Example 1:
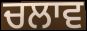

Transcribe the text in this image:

ਚਲਾਵ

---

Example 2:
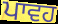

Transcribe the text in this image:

ਪਾਵਹ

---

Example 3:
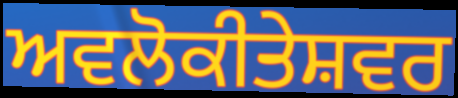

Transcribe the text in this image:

ਅਵਲੋਕੀਤੇਸ਼ਵਰ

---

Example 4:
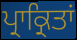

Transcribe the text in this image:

ਪ੍ਰਾਕ੍ਰਿਤਾਂ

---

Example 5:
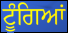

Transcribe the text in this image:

ਟੂੰਗਿਆਂ